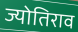
ज्‍योतिराव